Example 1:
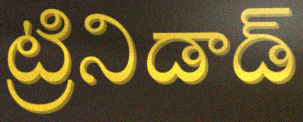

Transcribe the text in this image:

ట్రినిడాడ్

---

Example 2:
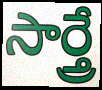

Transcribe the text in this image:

సార్త్రే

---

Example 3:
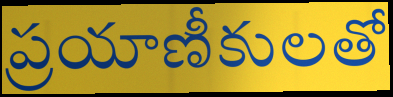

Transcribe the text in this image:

ప్రయాణీకులతో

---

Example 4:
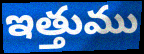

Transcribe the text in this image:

ఇత్తుము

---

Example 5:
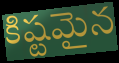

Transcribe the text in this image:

కిష్టమైన